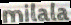
milala